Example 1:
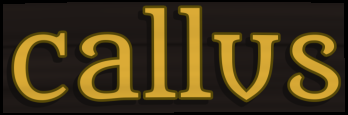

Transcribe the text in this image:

callus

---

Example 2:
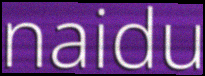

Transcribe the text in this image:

naidu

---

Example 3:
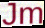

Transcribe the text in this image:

Jm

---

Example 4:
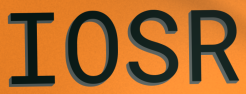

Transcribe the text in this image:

IOSR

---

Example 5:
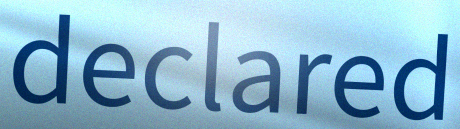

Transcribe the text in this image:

declared